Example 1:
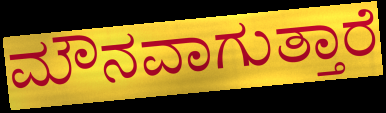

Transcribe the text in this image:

ಮೌನವಾಗುತ್ತಾರೆ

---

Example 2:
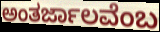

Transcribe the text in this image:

ಅಂತರ್ಜಾಲವೆಂಬ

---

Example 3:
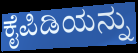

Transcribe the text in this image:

ಕೈಪಿಡಿಯನ್ನು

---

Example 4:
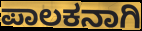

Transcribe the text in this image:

ಪಾಲಕನಾಗಿ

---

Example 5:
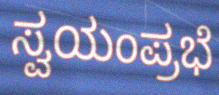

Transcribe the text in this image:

ಸ್ವಯಂಪ್ರಭೆ